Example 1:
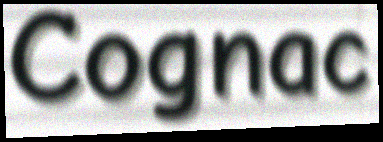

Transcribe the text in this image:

Cognac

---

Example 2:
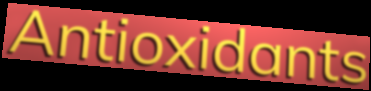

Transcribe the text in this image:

Antioxidants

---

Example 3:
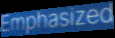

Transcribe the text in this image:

Emphasized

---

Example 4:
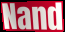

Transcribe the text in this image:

Nand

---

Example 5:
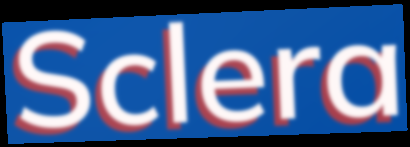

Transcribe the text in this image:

Sclera